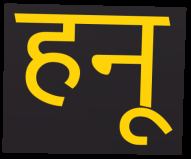
हनू